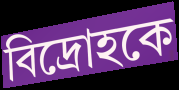
বিদ্রোহকে